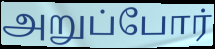
அறுப்போர்